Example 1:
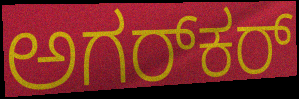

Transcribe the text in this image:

ಅಗರ್‌ಕರ್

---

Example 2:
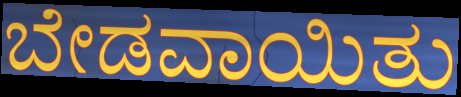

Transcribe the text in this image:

ಬೇಡವಾಯಿತು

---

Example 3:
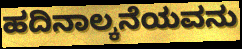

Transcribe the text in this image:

ಹದಿನಾಲ್ಕನೆಯವನು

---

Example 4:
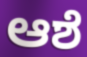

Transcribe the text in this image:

ಆಶೆ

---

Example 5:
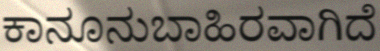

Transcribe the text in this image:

ಕಾನೂನುಬಾಹಿರವಾಗಿದೆ